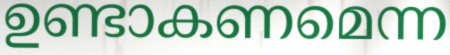
ഉണ്ടാകണമെന്ന